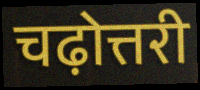
चढ़ोत्तरी